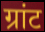
ग्रांट